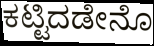
ಕಟ್ಟಿದಡೇನೊ